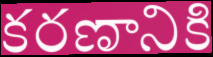
కరణానికి